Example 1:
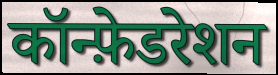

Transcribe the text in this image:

कॉन्फ़ेडरेशन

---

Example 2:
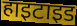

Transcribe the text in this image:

हाइटाइड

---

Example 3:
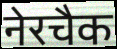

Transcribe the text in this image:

नेरचैक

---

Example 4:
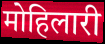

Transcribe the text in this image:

मोहिलारी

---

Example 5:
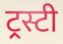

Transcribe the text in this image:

ट्रस्टी